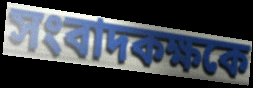
সংবাদকক্ষকে